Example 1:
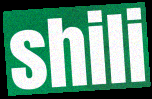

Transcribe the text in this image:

shili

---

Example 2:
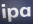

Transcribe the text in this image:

ipa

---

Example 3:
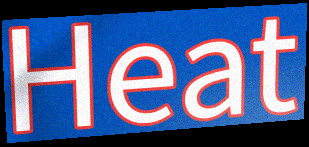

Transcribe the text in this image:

Heat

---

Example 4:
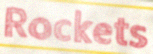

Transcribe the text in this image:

Rockets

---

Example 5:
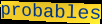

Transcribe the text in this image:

probables